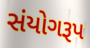
સંયોગરૂપ